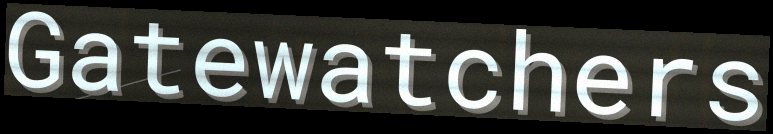
Gatewatchers